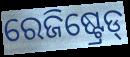
ରେଜିଷ୍ଟ୍ରେଡ୍